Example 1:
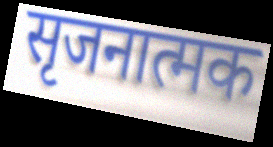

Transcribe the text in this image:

सृजनात्मक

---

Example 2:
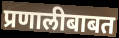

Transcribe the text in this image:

प्रणालीबाबत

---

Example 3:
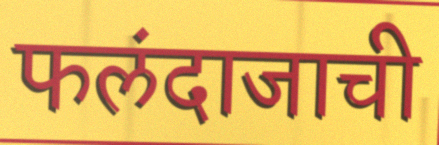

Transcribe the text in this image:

फलंदाजाची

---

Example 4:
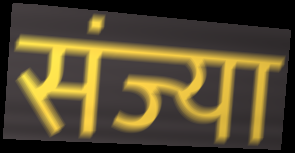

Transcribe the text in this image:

संज्या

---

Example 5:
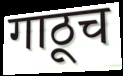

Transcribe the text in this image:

गाठूच